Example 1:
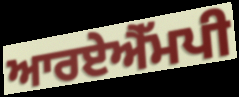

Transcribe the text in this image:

ਆਰਏਐੱਮਪੀ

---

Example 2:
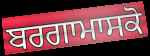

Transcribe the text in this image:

ਬਰਗਾਮਾਸਕੋ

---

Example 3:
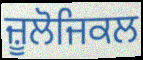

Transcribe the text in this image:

ਜ਼ੂਲੋਜਿਕਲ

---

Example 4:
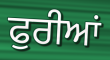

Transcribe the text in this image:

ਫੁਰੀਆਂ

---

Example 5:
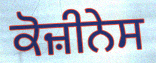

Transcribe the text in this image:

ਕੋਜ਼ੀਨੇਸ